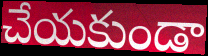
చేయకుండా